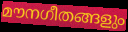
മൗനഗീതങ്ങളും